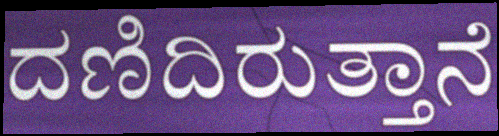
ದಣಿದಿರುತ್ತಾನೆ